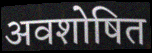
अवशोषित